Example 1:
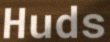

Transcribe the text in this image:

Huds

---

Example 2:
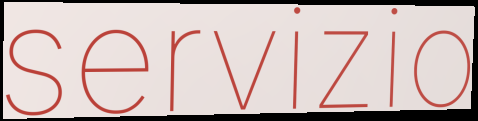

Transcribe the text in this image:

servizio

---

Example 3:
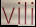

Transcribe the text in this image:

vili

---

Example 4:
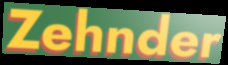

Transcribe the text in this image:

Zehnder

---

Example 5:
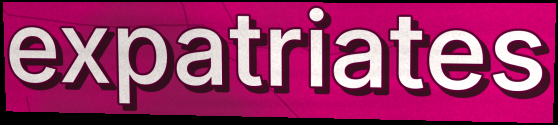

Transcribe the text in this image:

expatriates